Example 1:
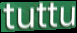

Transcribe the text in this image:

tuttu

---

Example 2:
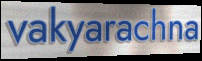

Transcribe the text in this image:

vakyarachna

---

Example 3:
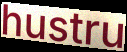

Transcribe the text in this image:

hustru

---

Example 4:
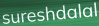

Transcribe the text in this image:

sureshdalal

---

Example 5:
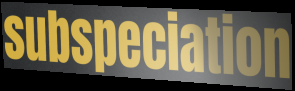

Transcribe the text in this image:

subspeciation